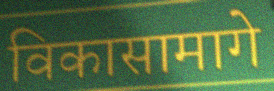
विकासामागे